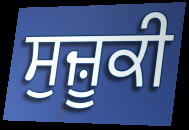
ਸੁਜ਼ੂਕੀ